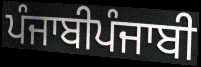
ਪੰਜਾਬੀਪੰਜਾਬੀ